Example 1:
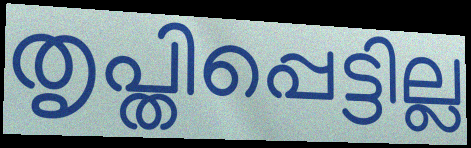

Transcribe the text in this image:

തൃപ്തിപ്പെട്ടില്ല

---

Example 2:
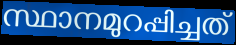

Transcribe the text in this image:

സ്ഥാനമുറപ്പിച്ചത്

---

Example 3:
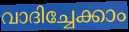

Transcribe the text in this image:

വാദിച്ചേക്കാം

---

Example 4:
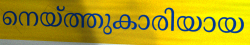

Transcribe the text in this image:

നെയ്ത്തുകാരിയായ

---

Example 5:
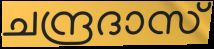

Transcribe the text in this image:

ചന്ദ്രദാസ്